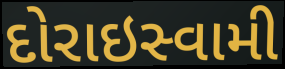
દોરાઇસ્વામી